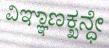
ವಿಞ್ಞಾಣಕ್ಖನ್ಧೇ